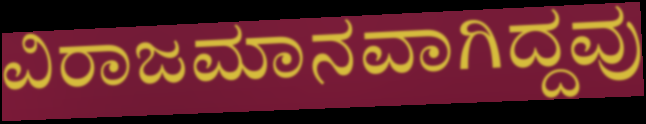
ವಿರಾಜಮಾನವಾಗಿದ್ದವು